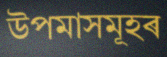
উপমাসমূহৰ